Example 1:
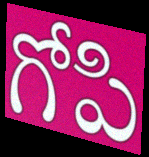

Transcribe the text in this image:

గోపి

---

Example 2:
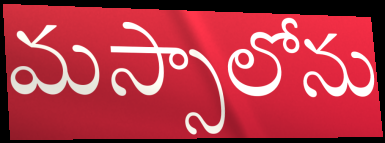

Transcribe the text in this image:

మస్సాలోను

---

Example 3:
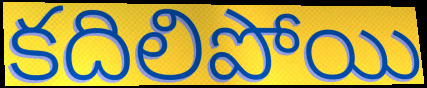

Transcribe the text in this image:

కదిలిపోయి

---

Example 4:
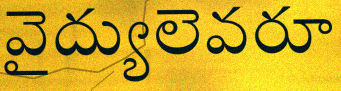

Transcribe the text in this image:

వైద్యులెవరూ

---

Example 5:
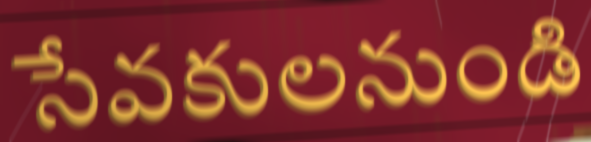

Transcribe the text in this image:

సేవకులనుండి